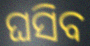
ଘସିବ